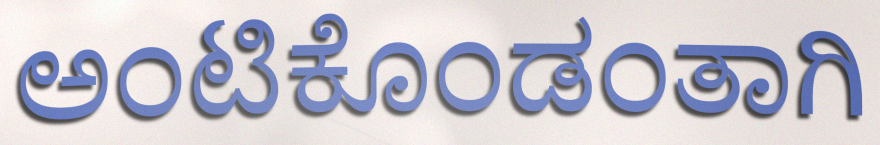
ಅಂಟಿಕೊಂಡಂತಾಗಿ